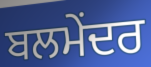
ਬਲਮੇਂਦਰ